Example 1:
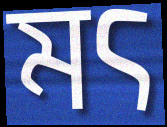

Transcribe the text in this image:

মৎ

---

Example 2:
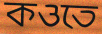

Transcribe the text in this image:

কওতে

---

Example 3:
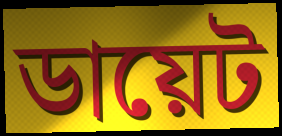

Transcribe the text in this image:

ডায়েট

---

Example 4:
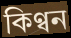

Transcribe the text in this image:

কিণ্বন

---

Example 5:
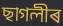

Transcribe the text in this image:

ছাগলীৰ